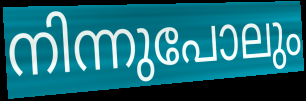
നിന്നുപോലും